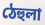
ঠেহুলা